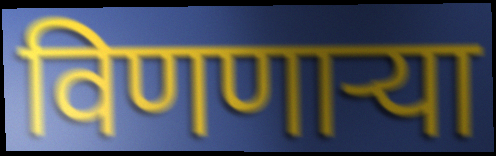
विणणाऱ्या